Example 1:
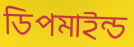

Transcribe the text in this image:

ডিপমাইন্ড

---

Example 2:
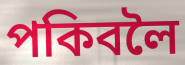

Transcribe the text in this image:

পকিবলৈ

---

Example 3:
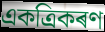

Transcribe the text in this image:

একত্ৰিকৰণ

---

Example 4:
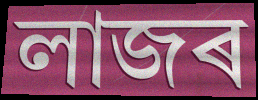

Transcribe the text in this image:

লাজৰ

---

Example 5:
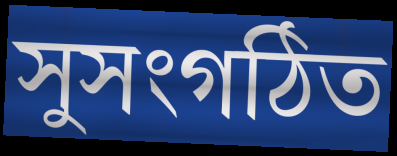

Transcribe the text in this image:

সুসংগঠিত